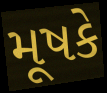
મૂષકે